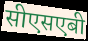
सीएसएबी